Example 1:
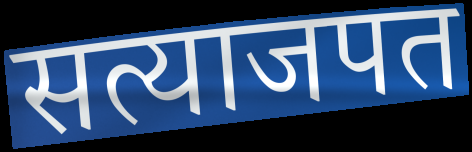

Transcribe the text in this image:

सत्याजपत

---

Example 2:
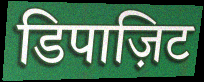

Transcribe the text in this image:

डिपाज़िट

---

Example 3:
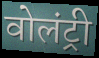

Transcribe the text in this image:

वोलंट्री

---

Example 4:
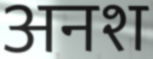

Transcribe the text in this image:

अनश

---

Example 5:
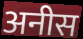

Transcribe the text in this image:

अनीस